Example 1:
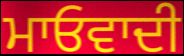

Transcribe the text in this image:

ਮਾਓਵਾਦੀ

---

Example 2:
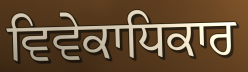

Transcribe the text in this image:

ਵਿਵੇਕਾਧਿਕਾਰ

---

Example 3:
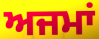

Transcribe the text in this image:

ਅਜਮਾਂ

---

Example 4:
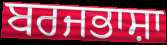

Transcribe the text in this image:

ਬਰਜਭਾਸ਼ਾ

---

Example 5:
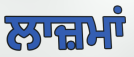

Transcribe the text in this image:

ਲਾਜ਼ਮਾਂ